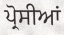
ਪ੍ਰੋਸੀਆਂ